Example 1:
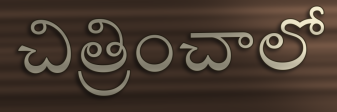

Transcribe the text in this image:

చిత్రించాలో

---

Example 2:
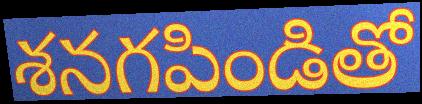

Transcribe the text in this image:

శనగపిండితో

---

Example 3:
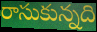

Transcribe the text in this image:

రాసుకున్నది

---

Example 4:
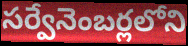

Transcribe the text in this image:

సర్వేనెంబర్లలోని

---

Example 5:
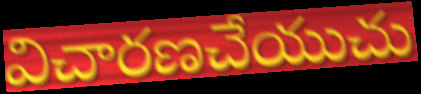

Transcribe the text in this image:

విచారణచేయుచు